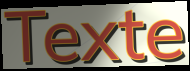
Texte